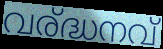
വര്ദ്ധനവ്